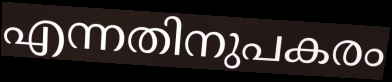
എന്നതിനുപകരം